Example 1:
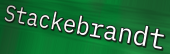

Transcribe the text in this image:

Stackebrandt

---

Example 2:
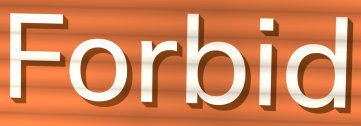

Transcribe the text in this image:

Forbid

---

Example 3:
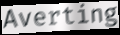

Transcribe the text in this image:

Averting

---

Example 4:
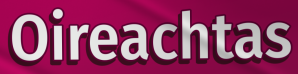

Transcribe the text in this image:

Oireachtas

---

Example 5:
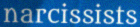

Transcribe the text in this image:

narcissists